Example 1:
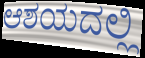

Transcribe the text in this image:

ಆಶಯದಲ್ಲಿ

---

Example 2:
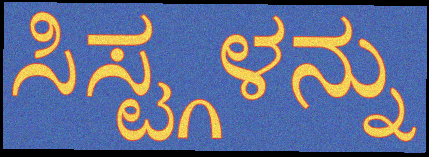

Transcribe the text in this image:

ಸಿಸ್ಟ್ಗಳನ್ನು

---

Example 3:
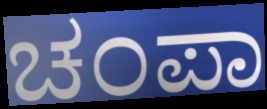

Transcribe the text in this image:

ಚಂಪಾ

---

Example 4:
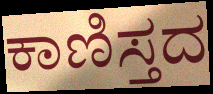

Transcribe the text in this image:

ಕಾಣಿಸ್ತದ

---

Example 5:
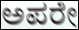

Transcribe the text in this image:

ಅಪರೇ